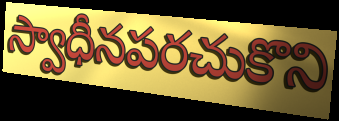
స్వాధీనపరచుకొని